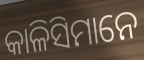
କାଳିସିମାନେ